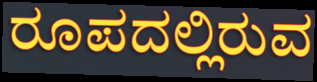
ರೂಪದಲ್ಲಿರುವ